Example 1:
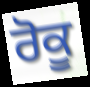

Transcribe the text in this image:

ਰੋਕੂ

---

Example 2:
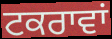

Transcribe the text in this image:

ਟਕਰਾਵਾਂ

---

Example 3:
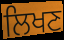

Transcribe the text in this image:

ਲਿਖਣ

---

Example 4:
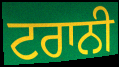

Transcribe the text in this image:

ਟਰਾਨੀ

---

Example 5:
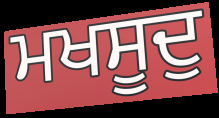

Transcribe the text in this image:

ਮਖਸੂਦੁ